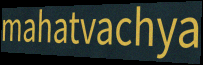
mahatvachya